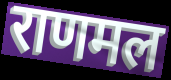
राणमल